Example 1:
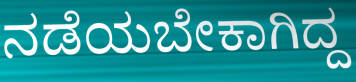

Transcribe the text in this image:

ನಡೆಯಬೇಕಾಗಿದ್ದ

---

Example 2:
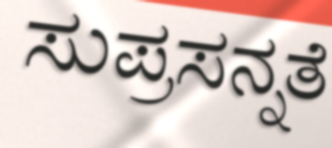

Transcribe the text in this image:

ಸುಪ್ರಸನ್ನತೆ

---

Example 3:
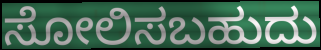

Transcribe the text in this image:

ಸೋಲಿಸಬಹುದು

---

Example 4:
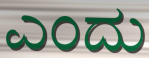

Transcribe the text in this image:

ಎಂದು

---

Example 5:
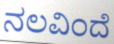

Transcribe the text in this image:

ನಲವಿಂದೆ